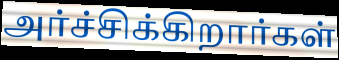
அர்ச்சிக்கிறார்கள்